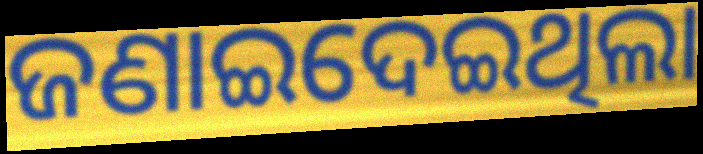
ଜଣାଇଦେଇଥିଲା